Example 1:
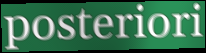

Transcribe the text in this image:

posteriori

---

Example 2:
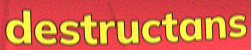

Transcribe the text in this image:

destructans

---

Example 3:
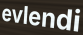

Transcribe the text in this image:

evlendi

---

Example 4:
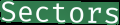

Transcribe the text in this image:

Sectors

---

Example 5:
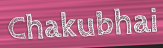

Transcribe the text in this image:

Chakubhai